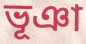
ভূঞা